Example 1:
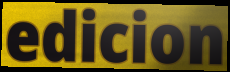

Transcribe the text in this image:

edicion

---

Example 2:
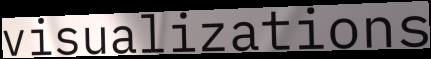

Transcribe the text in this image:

visualizations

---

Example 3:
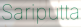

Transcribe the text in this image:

Sariputta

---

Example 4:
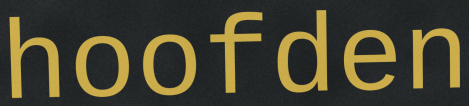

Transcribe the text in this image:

hoofden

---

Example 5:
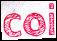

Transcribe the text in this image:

coi